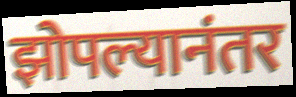
झोपल्यानंतर